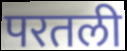
परतली